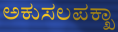
ಅಕುಸಲಪಕ್ಖಾ